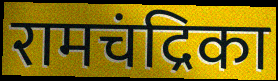
रामचंद्रिका